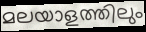
മലയാളത്തിലും